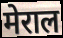
मेराल